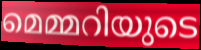
മെമ്മറിയുടെ